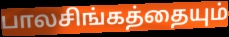
பாலசிங்கத்தையும்